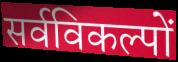
सर्वविकल्पों